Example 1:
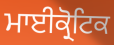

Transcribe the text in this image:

ਮਾਈਕ੍ਰੋਟਿਕ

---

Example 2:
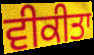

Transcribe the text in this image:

ਵੀਕੀਤਾ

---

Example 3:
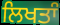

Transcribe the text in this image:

ਲਿਖਤਾੰ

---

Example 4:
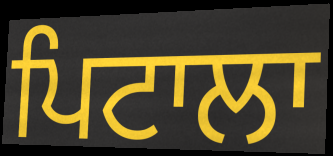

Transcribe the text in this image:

ਪਿਟਾਲਾ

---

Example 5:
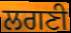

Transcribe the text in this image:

ਲਗਣੀ